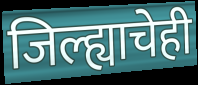
जिल्ह्याचेही